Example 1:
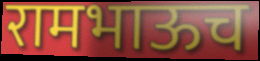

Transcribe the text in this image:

रामभाऊच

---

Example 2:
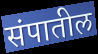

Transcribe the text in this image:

संपातील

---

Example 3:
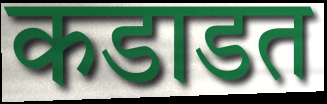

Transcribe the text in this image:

कडाडत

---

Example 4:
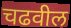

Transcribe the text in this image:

चढवील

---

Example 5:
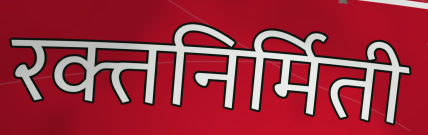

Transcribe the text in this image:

रक्तनिर्मिती